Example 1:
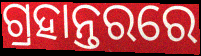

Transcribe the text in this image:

ଗ୍ରହାନ୍ତରରେ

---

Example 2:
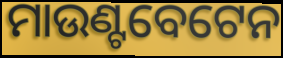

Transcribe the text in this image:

ମାଉଣ୍ଟବେଟେନ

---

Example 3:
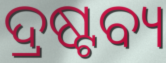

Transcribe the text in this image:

ଦ୍ରଷ୍ଟବ୍ୟ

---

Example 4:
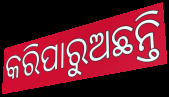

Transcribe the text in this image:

କରିପାରୁଅଛନ୍ତି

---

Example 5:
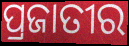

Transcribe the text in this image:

ପ୍ରଜାତୀର